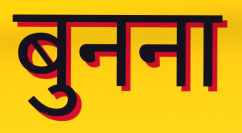
बुनना